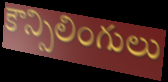
కౌన్సిలింగులు